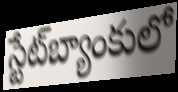
స్టేట్‌బ్యాంకులో